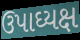
ઉપાઘ્યક્ષ